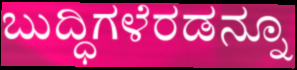
ಬುದ್ಧಿಗಳೆರಡನ್ನೂ